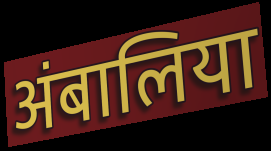
अंबालिया